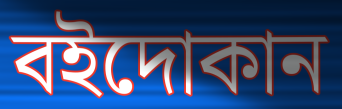
বইদোকান